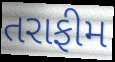
તરાફીમ